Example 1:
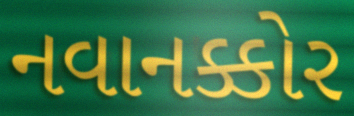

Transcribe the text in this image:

નવાનક્કોર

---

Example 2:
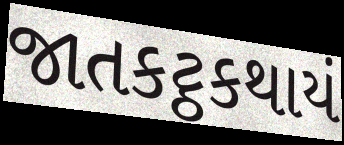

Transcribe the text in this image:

જાતકટ્ઠકથાયં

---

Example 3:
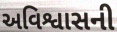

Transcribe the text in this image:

અવિશ્વાસની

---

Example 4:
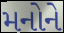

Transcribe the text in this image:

મનોને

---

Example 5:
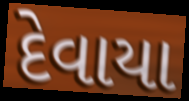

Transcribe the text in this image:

દેવાયા